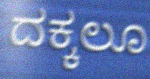
ದಕ್ಕಲೂ